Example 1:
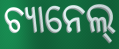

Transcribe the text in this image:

ଚ୍ୟାନେଲ୍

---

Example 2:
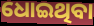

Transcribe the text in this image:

ଧୋଇଥିବା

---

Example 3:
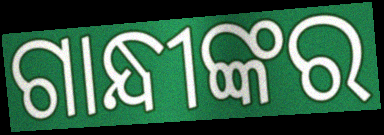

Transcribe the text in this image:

ଗାନ୍ଧୀଙ୍କର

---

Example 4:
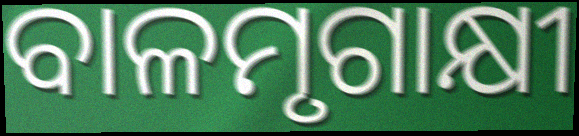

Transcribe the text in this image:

ବାଳମୃଗାକ୍ଷୀ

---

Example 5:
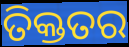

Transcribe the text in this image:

ତିକ୍ତତର